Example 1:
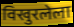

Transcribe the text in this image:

विखुरलेला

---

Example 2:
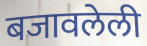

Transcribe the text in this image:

बजावलेली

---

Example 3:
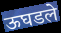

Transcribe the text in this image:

ऊघडले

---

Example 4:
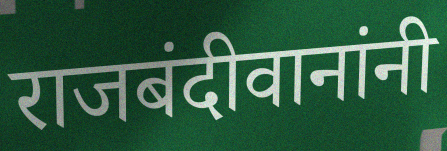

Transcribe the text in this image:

राजबंदीवानांनी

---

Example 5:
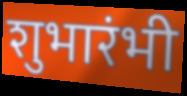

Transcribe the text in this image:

शुभारंभी